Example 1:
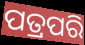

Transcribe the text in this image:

ପତ୍ରପରି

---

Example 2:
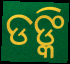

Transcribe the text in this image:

ଡଙ୍କି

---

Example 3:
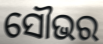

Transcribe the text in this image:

ସୌଭର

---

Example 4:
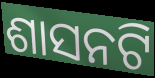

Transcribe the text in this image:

ଶାସନଟି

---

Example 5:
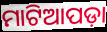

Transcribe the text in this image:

ମାଟିଆପଡ଼ା